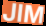
JIM